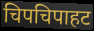
चिपचिपाहट